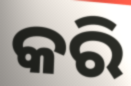
କରି